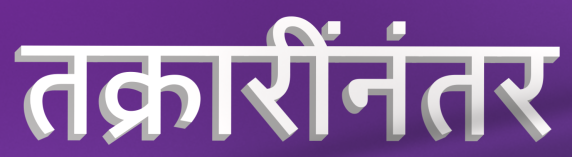
तक्रारींनंतर